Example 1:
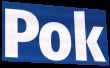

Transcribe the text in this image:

Pok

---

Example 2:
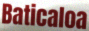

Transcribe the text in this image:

Baticaloa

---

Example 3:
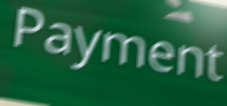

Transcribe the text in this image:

Payment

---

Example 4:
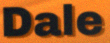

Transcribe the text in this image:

Dale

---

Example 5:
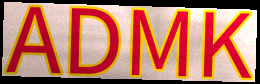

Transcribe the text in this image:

ADMK